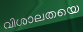
വിശാലതയെ